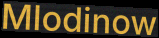
Mlodinow